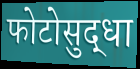
फोटोसुद्धा